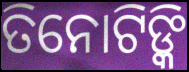
ତିନୋଟିଙ୍କି